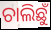
ଚାଲିଛୁଁ